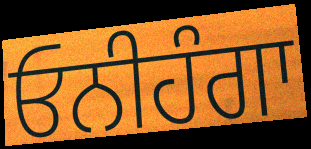
ਓਨੀਹੰਗਾ